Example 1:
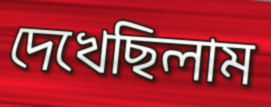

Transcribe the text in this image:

দেখেছিলাম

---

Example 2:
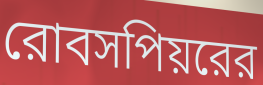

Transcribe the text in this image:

রোবসপিয়রের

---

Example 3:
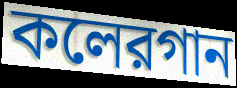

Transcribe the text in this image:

কলেরগান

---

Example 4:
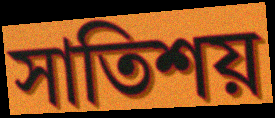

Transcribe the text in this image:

সাতিশয়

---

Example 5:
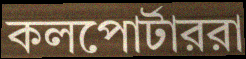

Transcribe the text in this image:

কলপোর্টাররা